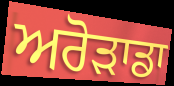
ਅਰੋੜਾਡਾ